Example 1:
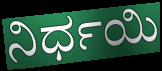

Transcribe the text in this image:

ನಿರ್ಧಯಿ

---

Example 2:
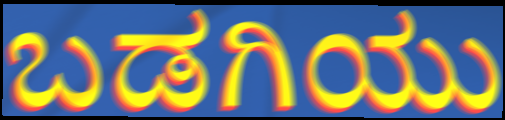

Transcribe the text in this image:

ಬಡಗಿಯು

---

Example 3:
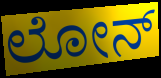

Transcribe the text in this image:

ಲೋನ್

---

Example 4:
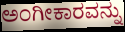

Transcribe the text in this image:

ಅಂಗೀಕಾರವನ್ನು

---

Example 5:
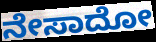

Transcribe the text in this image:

ನೇಸಾದೋ